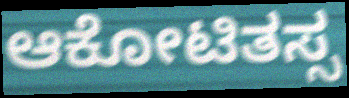
ಆಕೋಟಿತಸ್ಸ